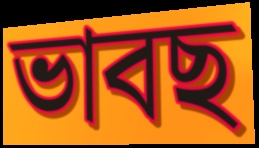
ভাবছ